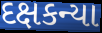
દક્ષકન્યા